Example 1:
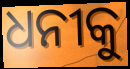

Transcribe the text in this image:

ଧନୀକୁ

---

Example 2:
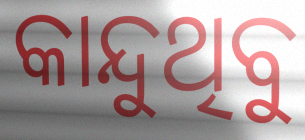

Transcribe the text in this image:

କାନ୍ଦୁଥିବୁ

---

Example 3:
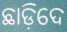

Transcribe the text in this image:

ଛାଡ଼ିଦେ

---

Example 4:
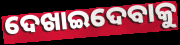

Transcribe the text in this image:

ଦେଖାଇଦେବାକୁ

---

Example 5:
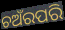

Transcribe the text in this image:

ଚଅଁରପରି